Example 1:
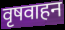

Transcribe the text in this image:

वृषवाहन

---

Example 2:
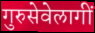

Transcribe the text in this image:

गुरुसेवेलागीं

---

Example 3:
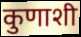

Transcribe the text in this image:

कुणाशी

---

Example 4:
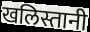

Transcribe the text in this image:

खलिस्तानी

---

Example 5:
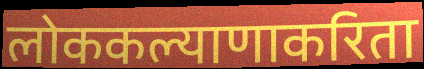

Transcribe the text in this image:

लोककल्याणाकरिता